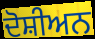
ਦੋਸ਼ੀਅਨ